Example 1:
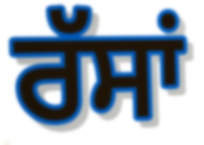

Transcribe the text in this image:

ਰੱਸਾਂ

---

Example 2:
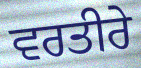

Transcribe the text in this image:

ਵਰਤੀਰੇ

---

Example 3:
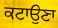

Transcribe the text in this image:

ਕਟਾਉਣਾ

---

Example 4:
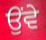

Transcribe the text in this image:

ਉੰਵੇ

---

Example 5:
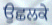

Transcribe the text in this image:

ਉਛਲਕੇ